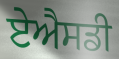
ਏਐਸਡੀ